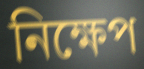
নিক্ষেপ